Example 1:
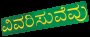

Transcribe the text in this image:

ವಿವರಿಸುವೆವು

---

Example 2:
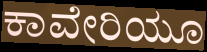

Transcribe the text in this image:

ಕಾವೇರಿಯೂ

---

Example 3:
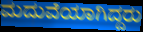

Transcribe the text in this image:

ಮದುವೆಯಾಗಿದ್ದರು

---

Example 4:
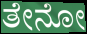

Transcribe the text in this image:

ತೇನೋ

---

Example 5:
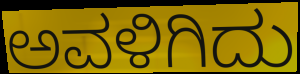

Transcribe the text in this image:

ಅವಳಿಗಿದು